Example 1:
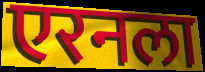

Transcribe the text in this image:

एरनला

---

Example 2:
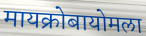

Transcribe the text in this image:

मायक्रोबायोमला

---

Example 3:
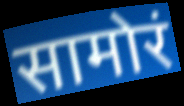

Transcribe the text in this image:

सामोरं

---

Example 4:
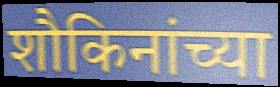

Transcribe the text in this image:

शौकिनांच्या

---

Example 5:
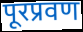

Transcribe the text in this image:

पूरप्रवण